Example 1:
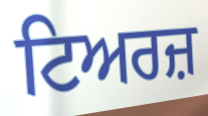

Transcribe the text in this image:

ਟਿਅਰਜ਼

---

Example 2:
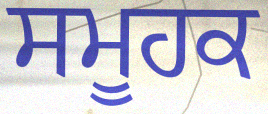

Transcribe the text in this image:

ਸਮੂਹਕ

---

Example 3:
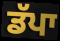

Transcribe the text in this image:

ਡੱਪਾ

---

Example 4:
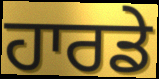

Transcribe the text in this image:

ਹਾਰਡੇ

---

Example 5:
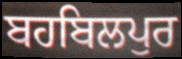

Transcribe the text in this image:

ਬਹਬਿਲਪੁਰ